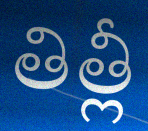
తిత్లీ